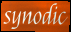
synodic